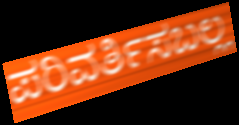
ಪರಿವರ್ತಿಸಬಲ್ಲ